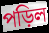
পড়িল